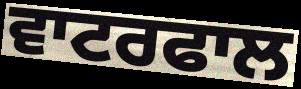
ਵਾਟਰਫਾਲ